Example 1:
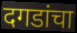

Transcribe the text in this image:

दगडांचा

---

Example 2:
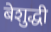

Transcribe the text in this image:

बेशुद्धी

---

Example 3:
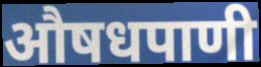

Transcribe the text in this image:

औषधपाणी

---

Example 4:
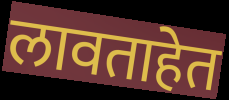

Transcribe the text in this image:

लावताहेत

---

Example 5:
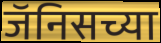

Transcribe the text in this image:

जॅनिसच्या